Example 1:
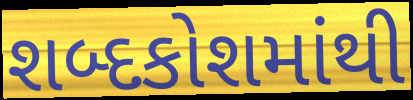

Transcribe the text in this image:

શબ્દકોશમાંથી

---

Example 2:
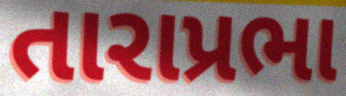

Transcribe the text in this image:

તારાપ્રભા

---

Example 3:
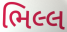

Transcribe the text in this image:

ભિલ્લ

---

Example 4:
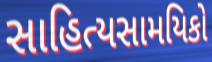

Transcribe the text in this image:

સાહિત્યસામયિકો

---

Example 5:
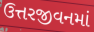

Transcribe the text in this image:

ઉત્તરજીવનમાં